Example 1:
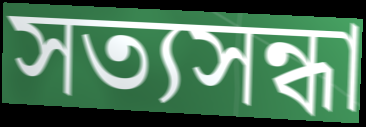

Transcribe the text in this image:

সত্যসন্ধা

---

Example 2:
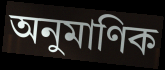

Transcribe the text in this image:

অনুমাণিক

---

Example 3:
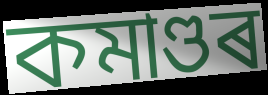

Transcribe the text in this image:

কমাণ্ডৰ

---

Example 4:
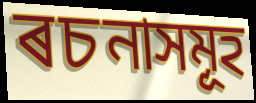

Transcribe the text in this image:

ৰচনাসমূহ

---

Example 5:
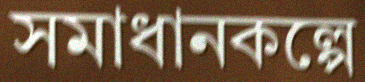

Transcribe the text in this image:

সমাধানকল্পে